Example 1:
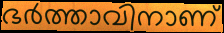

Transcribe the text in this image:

ഭർത്താവിനാണ്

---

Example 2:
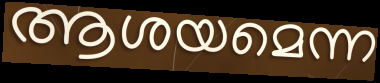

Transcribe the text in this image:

ആശയമെന്ന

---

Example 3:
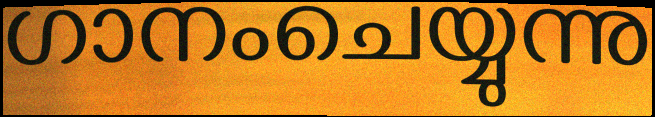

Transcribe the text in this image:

ഗാനംചെയ്യുന്നു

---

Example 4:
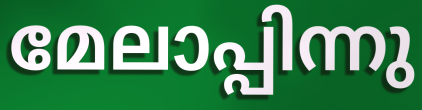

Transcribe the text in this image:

മേലാപ്പിന്നു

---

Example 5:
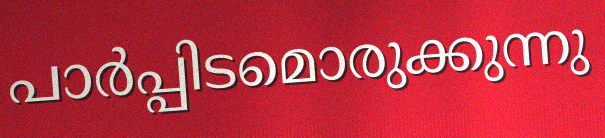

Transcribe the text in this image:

പാർപ്പിടമൊരുക്കുന്നു